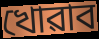
খোৱাব